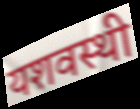
यशवस्थी